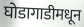
घोडागाडीमधून